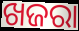
ଖଜରା